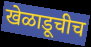
खेळाडूचीच